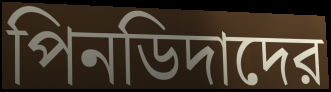
পিনডিদাদের